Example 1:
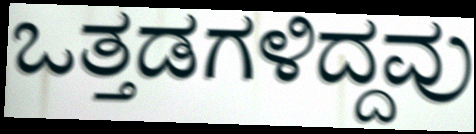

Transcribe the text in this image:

ಒತ್ತಡಗಳಿದ್ದವು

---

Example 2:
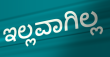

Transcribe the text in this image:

ಇಲ್ಲವಾಗಿಲ್ಲ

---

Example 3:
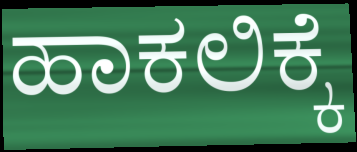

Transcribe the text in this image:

ಹಾಕಲಿಕ್ಕೆ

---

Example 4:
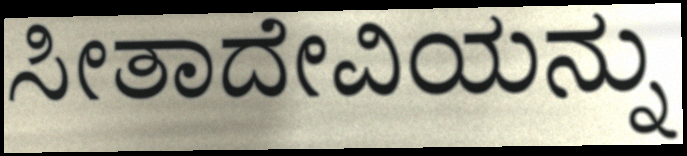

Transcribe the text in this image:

ಸೀತಾದೇವಿಯನ್ನು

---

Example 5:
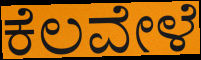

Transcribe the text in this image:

ಕೆಲವೇಳೆ